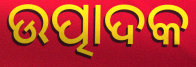
ଉତ୍ପାଦକ